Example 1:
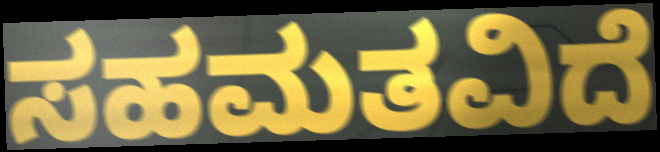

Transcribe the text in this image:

ಸಹಮತವಿದೆ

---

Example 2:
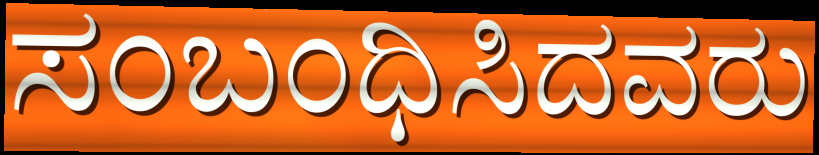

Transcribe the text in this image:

ಸಂಬಂಧಿಸಿದವರು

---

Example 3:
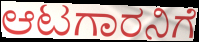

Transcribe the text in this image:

ಆಟಗಾರನಿಗೆ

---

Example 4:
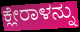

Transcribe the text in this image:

ಕ್ಲೇರಾಳನ್ನು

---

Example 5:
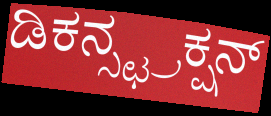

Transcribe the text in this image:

ಡಿಕನ್ಸ್ಟ್ರಕ್ಷನ್